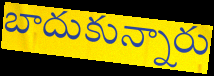
బాదుకున్నారు